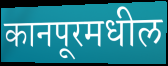
कानपूरमधील